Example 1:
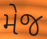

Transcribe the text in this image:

મેજ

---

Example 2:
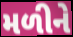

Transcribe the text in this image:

મળીને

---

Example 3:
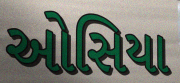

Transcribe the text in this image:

ઓસિયા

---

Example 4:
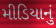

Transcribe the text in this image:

મીડિયાનું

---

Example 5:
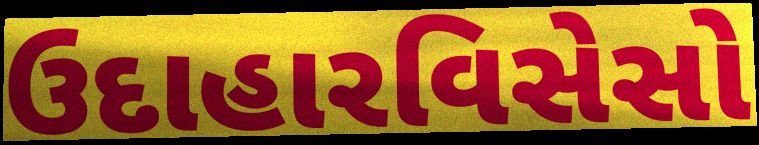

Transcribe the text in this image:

ઉદાહારવિસેસો